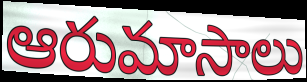
ఆరుమాసాలు